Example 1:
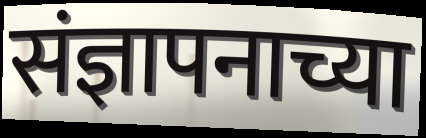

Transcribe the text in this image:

संज्ञापनाच्या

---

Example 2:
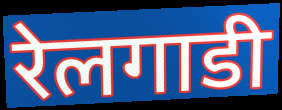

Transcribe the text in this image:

रेलगाडी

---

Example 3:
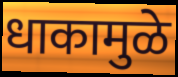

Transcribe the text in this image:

धाकामुळे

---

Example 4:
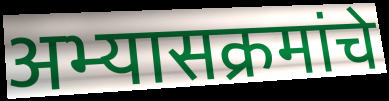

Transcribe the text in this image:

अभ्यासक्रमांचे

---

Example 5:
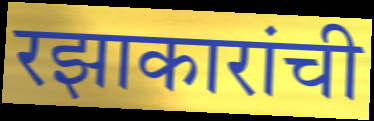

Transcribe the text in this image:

रझाकारांची